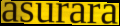
asurara